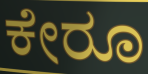
ಕೇರೂ